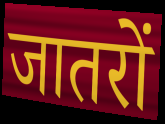
जातरों